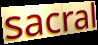
sacral